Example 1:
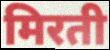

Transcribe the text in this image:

मिरती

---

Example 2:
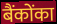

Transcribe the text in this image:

बैंकोंका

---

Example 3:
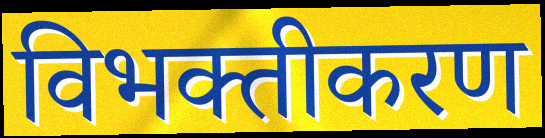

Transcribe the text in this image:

विभक्तीकरण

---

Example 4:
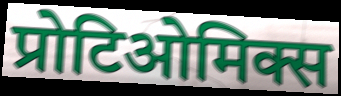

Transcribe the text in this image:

प्रोटिओमिक्स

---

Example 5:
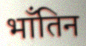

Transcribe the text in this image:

भाँतिन